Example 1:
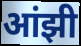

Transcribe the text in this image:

आंझी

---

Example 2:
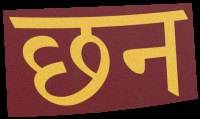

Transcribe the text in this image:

छन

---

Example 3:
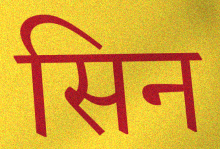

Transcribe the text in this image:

सिन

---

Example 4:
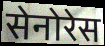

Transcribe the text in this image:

सेनोरेस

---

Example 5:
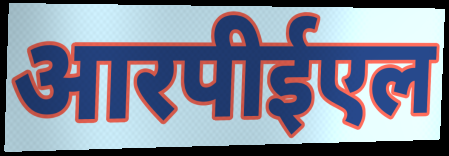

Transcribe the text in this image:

आरपीईएल